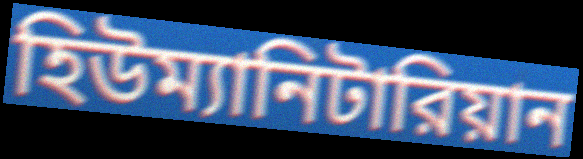
হিউম্যানিটারিয়ান